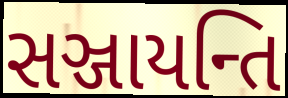
સઞ્જાયન્તિ